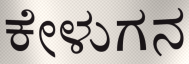
ಕೇಳುಗನ